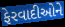
ફેરવાદીઓને